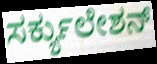
ಸರ್ಕ್ಯುಲೇಶನ್